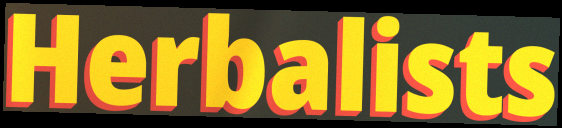
Herbalists